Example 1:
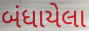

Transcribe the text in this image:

બંધાયેલા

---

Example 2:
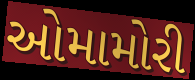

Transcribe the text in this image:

ઓમામોરી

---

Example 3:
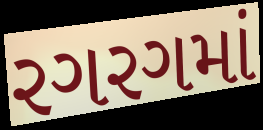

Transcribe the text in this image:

રગરગમાં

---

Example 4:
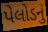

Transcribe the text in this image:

પેલોડનું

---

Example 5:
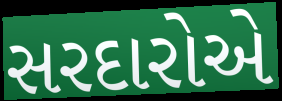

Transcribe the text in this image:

સરદારોએ